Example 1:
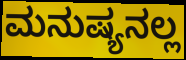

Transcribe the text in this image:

ಮನುಷ್ಯನಲ್ಲ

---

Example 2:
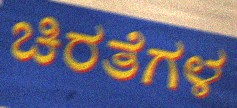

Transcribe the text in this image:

ಚಿರತೆಗಳ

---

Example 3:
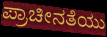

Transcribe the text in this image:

ಪ್ರಾಚೀನತೆಯು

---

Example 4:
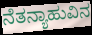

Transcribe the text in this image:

ನೆತನ್ಯಾಹುವಿನ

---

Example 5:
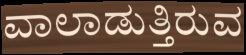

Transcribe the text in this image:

ವಾಲಾಡುತ್ತಿರುವ